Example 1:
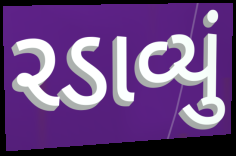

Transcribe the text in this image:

રડાવ્યું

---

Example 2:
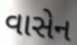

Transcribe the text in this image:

વાસેન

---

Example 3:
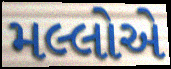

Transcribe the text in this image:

મલ્લોએ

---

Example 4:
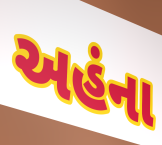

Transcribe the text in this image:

અહંના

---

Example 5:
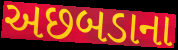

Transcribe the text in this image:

અછબડાના